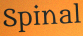
Spinal